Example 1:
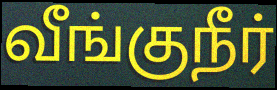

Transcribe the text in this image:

வீங்குநீர்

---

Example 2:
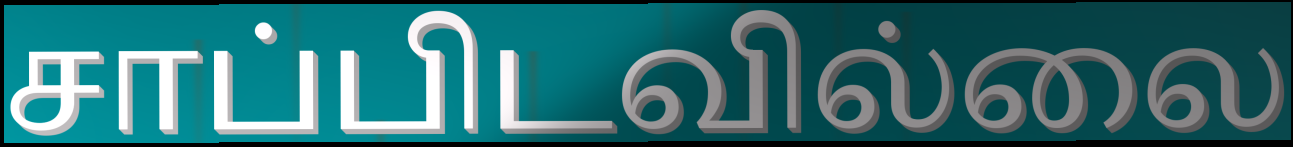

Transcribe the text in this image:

சாப்பிடவில்லை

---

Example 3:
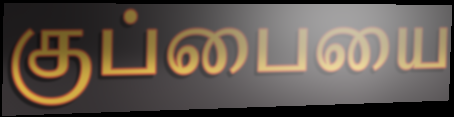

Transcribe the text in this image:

குப்பையை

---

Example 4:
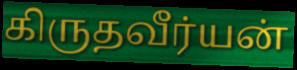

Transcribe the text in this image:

கிருதவீர்யன்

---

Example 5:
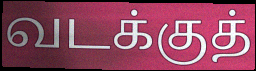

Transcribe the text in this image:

வடக்குத்